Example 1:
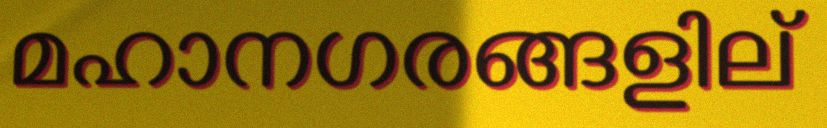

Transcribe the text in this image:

മഹാനഗരങ്ങളില്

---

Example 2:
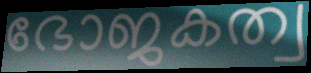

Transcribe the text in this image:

ഭോജകത്വ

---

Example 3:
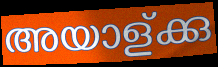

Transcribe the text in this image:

അയാള്ക്കു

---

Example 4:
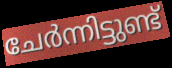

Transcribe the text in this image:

ചേർന്നിട്ടുണ്ട്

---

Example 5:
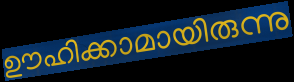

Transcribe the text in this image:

ഊഹിക്കാമായിരുന്നു